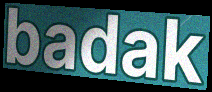
badak